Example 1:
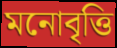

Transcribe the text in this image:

মনোবৃত্তি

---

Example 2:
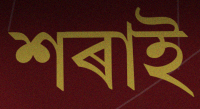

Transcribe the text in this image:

শৰাই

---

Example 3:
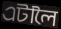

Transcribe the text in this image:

এটালৈ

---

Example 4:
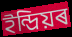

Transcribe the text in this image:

ইন্দ্ৰিয়ৰ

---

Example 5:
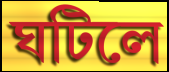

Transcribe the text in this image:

ঘটিলে